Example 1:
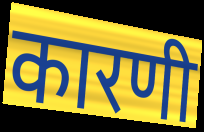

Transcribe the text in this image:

कारणी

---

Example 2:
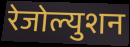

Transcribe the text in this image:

रेजोल्युशन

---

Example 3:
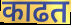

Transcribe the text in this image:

काढत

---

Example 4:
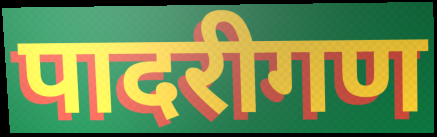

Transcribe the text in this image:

पादरीगण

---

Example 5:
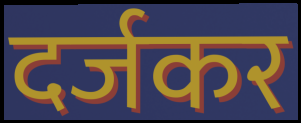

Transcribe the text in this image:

दर्जकर